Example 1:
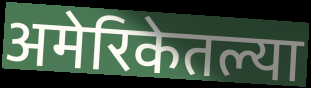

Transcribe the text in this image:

अमेरिकेतल्या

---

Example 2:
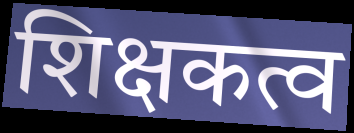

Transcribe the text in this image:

शिक्षकत्व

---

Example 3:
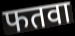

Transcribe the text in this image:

फतवा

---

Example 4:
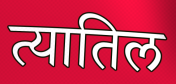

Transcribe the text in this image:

त्यातिल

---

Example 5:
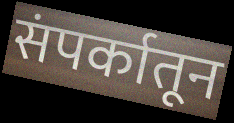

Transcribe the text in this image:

संपर्कातून